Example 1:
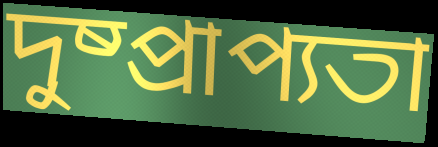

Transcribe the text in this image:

দুষ্প্রাপ্যতা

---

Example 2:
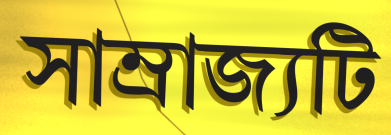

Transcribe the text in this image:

সাম্রাজ্যটি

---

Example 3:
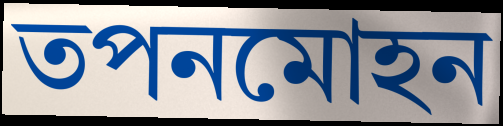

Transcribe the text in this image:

তপনমোহন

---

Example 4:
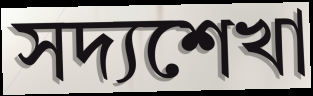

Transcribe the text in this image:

সদ্যশেখা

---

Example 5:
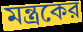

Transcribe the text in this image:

মন্ত্রকের